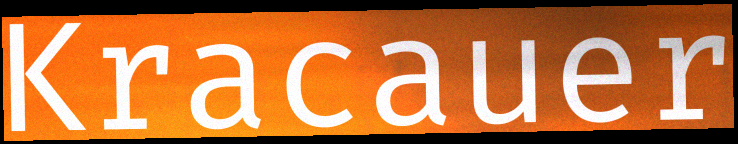
Kracauer